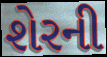
શેરની